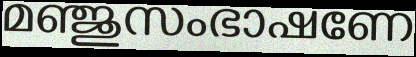
മഞ്ജുസംഭാഷണേ